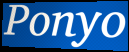
Ponyo